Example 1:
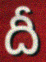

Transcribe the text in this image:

దీ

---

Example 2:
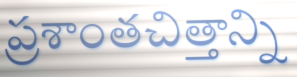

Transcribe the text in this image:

ప్రశాంతచిత్తాన్ని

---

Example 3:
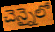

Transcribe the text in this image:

చెన్నైలో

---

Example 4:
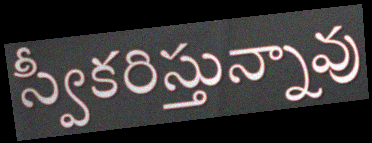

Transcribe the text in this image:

స్వీకరిస్తున్నావు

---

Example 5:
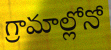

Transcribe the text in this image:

గ్రామాల్లోనో